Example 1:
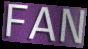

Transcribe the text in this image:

FAN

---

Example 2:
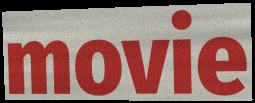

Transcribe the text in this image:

movie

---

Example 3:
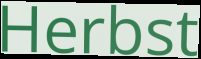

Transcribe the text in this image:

Herbst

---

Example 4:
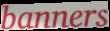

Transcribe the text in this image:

banners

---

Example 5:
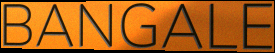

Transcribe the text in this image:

BANGALE